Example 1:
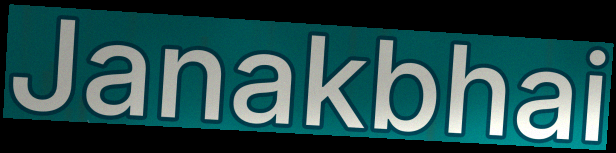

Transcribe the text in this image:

Janakbhai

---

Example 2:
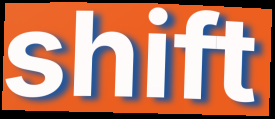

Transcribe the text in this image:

shift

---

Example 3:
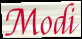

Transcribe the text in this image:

Modi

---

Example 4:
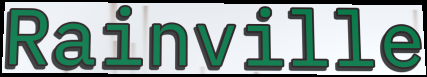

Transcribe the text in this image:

Rainville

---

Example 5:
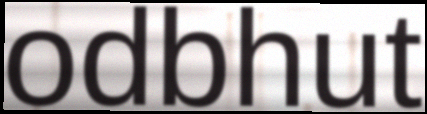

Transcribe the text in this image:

odbhut